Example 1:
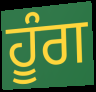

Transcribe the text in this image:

ਹੂੰਗ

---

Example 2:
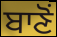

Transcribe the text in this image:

ਬਾਣੋਂ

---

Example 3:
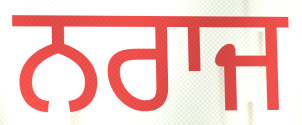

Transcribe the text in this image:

ਨਰਾਜ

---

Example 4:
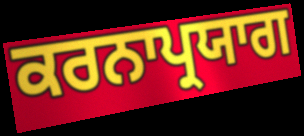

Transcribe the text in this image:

ਕਰਨਾਪ੍ਰਯਾਗ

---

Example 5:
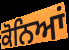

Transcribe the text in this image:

ਕੋਨਿਆਂ